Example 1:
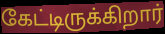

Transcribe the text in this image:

கேட்டிருக்கிறார்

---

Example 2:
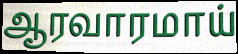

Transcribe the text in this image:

ஆரவாரமாய்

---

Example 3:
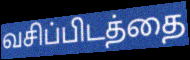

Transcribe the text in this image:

வசிப்பிடத்தை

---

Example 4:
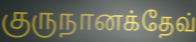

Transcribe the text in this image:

குருநானக்தேவ்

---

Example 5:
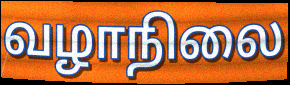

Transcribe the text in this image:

வழாநிலை